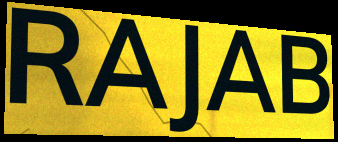
RAJAB